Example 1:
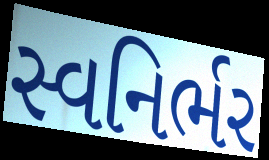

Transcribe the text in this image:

સ્વનિર્ભર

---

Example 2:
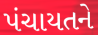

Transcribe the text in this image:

પંચાયતને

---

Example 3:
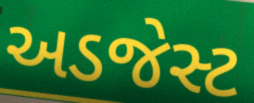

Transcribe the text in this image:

અડજેસ્ટ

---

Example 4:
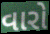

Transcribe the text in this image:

વારો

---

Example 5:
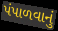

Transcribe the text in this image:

પંપાળવાનું